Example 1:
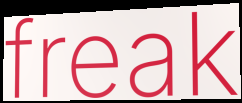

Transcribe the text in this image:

freak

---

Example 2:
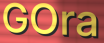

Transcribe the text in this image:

GOra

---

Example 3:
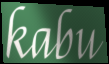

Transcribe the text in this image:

kabu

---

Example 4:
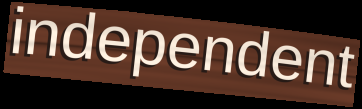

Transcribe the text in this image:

independent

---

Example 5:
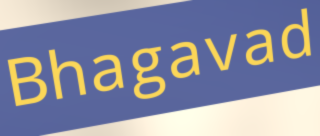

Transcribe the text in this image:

Bhagavad